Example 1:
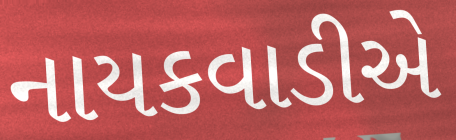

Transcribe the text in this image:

નાયકવાડીએ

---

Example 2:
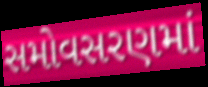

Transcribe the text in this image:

સમોવસરણમાં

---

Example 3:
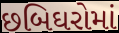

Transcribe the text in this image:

છબિઘરોમાં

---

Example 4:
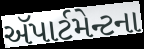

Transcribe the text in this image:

ઍપાર્ટમેન્ટના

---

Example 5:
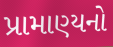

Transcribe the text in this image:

પ્રામાણ્યનો